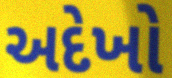
અદેખો